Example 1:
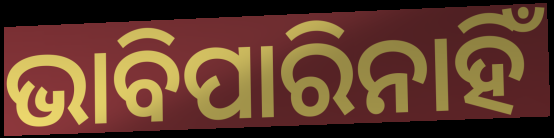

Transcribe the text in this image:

ଭାବିପାରିନାହିଁ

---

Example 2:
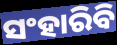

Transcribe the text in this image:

ସଂହାରିବି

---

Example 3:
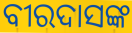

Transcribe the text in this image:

ବୀରଦାସଙ୍କ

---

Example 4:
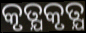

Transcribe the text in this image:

କୃତ୍ଯକୃତ୍ଯ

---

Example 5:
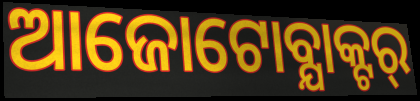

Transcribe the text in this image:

ଆଜୋଟୋବ୍ଯାକ୍ଟର୍